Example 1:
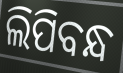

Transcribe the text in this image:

ଲିପିବନ୍ଧ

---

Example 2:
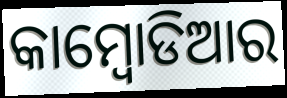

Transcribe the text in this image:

କାମ୍ବୋଡିଆର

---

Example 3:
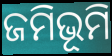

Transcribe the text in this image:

ଜମିଭୂମି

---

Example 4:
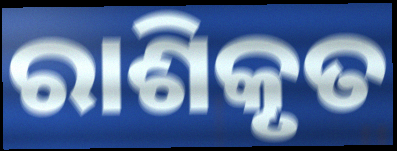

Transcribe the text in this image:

ରାଶିକୃତ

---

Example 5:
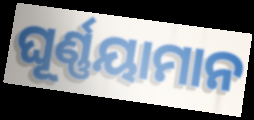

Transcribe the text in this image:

ଘୂର୍ଣ୍ଣୟାମାନ